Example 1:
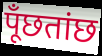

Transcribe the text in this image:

पूँछतांछ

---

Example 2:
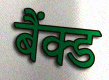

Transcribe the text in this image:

बैंक्ड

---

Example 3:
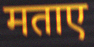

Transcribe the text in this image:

मताए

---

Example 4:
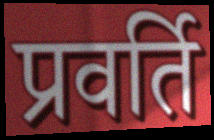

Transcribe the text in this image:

प्रवर्ति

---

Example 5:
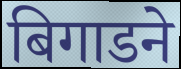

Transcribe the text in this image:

बिगाडने